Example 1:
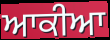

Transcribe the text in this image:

ਆਕੀਆ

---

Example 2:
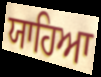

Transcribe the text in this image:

ਯਾਹਿਆ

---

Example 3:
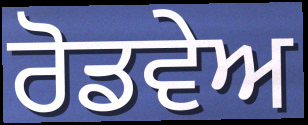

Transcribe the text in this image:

ਰੋਡਵੇਅ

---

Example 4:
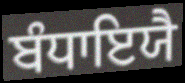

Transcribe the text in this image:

ਬੰਧਾਇਯੈ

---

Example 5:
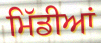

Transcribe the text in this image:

ਮਿੱਡੀਆਂ